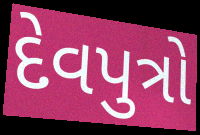
દેવપુત્રો